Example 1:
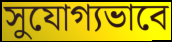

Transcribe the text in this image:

সুযোগ্যভাবে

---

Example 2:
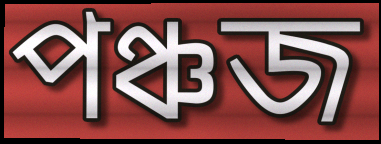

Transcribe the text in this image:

পঞ্চজ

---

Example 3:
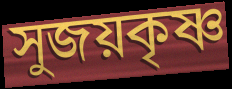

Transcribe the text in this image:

সুজয়কৃষ্ণ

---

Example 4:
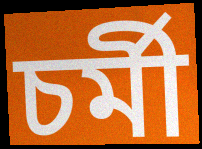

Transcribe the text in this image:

চর্মী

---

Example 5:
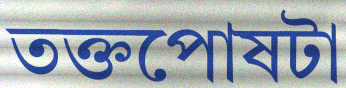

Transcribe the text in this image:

তক্তপোষটা